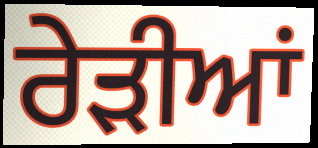
ਰੇੜੀਆਂ